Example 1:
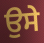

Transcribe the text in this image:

ਉਸੇ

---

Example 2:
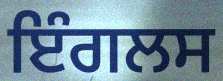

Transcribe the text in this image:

ਇੰਗਲਸ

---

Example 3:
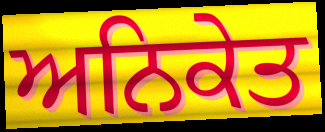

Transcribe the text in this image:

ਅਨਿਕੇਤ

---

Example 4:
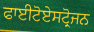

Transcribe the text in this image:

ਫਾਈਟੋਏਸਟ੍ਰੋਜਨ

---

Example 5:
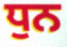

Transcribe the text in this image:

ਧੁਨ